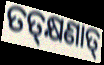
ତତ୍କ୍ଷଣାତ୍